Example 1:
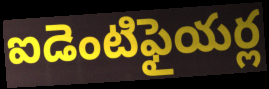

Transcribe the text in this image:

ఐడెంటిఫైయర్ల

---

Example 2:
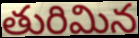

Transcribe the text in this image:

తురిమిన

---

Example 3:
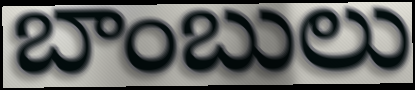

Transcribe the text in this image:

బాంబులు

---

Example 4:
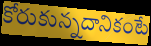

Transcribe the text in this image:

కోరుకున్నదానికంటే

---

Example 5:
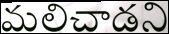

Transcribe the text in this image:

మలిచాడని